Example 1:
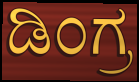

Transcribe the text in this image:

ಡಿಂಗ್ರ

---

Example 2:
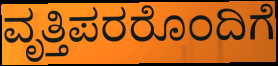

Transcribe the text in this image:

ವೃತ್ತಿಪರರೊಂದಿಗೆ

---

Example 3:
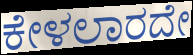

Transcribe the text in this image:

ಕೇಳಲಾರದೇ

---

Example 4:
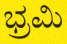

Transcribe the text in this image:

ಭ್ರಮಿ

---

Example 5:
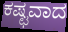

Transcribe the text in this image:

ಕಷ್ಟವಾದ